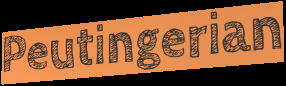
Peutingerian